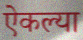
ऐकल्या